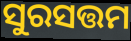
ସୁରସତ୍ତମ